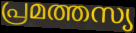
പ്രമത്തസ്യ